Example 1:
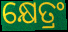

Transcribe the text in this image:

କ୍ଷେତ୍ରଂ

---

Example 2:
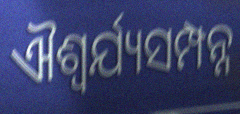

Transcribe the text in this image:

ଐଶ୍ୱର୍ଯ୍ୟସମ୍ପନ୍ନ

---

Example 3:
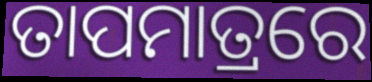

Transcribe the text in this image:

ତାପମାତ୍ରରେ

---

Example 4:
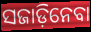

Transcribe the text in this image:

ସଜାଡ଼ିନେବା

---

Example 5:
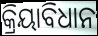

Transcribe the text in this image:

କ୍ରିୟାବିଧାନ